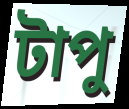
টাপু